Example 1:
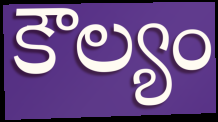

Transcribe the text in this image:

కౌల్యం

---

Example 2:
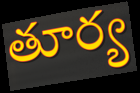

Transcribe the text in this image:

తూర్య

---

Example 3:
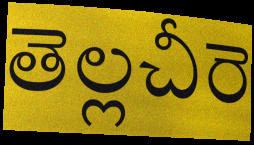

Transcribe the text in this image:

తెల్లచీరె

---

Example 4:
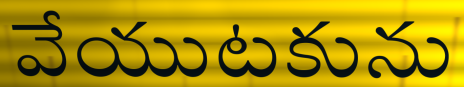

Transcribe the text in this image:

వేయుటకును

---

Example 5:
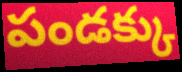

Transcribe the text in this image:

పండక్కు